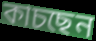
কাচছেন